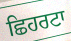
ਛਿਹਰਟਾ